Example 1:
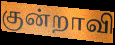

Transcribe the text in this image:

குன்றாவி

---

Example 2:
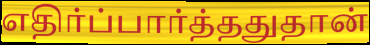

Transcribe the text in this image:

எதிர்ப்பார்த்ததுதான்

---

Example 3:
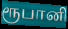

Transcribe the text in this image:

ரூபானி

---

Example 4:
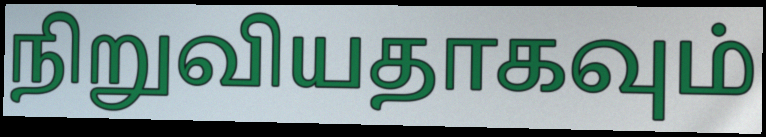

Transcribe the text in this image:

நிறுவியதாகவும்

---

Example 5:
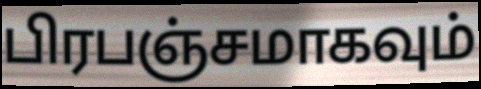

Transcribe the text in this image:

பிரபஞ்சமாகவும்